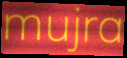
mujra